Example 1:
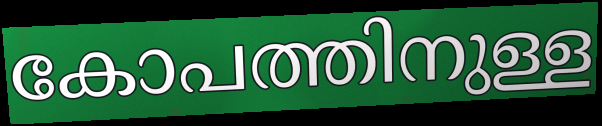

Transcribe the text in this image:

കോപത്തിനുള്ള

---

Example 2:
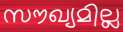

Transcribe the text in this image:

സൗഖ്യമില്ല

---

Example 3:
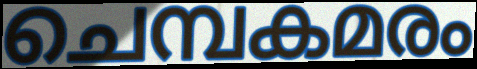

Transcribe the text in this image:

ചെമ്പകമരം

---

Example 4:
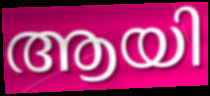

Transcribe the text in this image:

ആയി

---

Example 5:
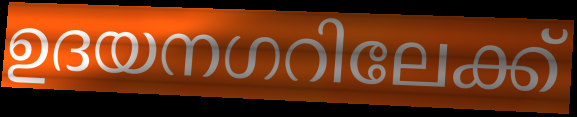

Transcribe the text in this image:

ഉദയനഗറിലേക്ക്